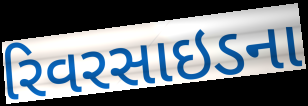
રિવરસાઇડના